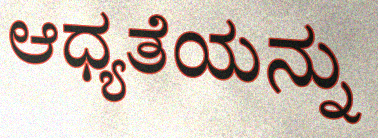
ಆಧ್ಯತೆಯನ್ನು